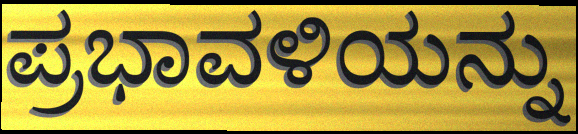
ಪ್ರಭಾವಳಿಯನ್ನು